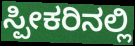
ಸ್ಪೀಕರಿನಲ್ಲಿ